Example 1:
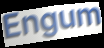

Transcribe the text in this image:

Engum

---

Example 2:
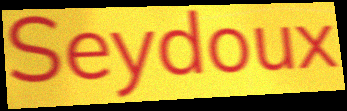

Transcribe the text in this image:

Seydoux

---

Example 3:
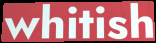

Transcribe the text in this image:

whitish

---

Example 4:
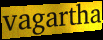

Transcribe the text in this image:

vagartha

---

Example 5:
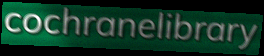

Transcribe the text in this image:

cochranelibrary